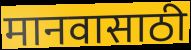
मानवासाठी